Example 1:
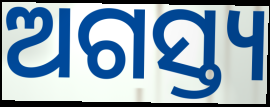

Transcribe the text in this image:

ଅଗସ୍ତ୍ୟ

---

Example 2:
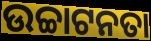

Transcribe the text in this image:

ଉଚ୍ଚାଟନତା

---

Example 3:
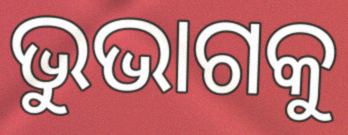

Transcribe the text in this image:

ଭୁଭାଗକୁ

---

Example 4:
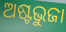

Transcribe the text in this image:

ଅଷ୍ଟଭୁଜା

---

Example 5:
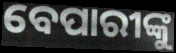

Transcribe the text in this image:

ବେପାରୀଙ୍କୁ